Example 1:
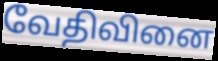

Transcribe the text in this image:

வேதிவினை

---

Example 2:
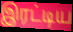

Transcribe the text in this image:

இரட்டிய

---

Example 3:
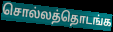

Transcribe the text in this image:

சொல்லத்தொடங்க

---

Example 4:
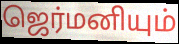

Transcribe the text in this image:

ஜெர்மனியும்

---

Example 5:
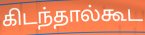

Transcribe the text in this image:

கிடந்தால்கூட